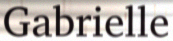
Gabrielle